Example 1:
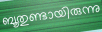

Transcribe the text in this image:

ബൂതുണ്ടായിരുന്നു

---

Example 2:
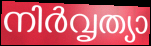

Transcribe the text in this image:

നിർവൃത്യാ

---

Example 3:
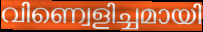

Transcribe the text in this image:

വിണ്വെളിച്ചമായി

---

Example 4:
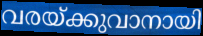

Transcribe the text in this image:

വരയ്ക്കുവാനായി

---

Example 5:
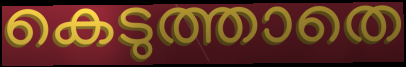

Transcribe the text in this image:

കെടുത്താതെ